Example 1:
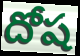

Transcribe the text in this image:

దోష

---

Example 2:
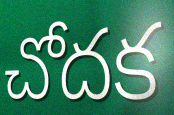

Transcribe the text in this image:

చోదక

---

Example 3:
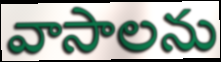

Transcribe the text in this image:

వాసాలను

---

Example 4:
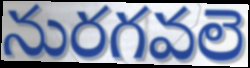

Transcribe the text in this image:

నురగవలె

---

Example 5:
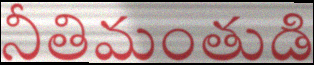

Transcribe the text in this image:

నీతిమంతుడి